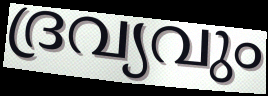
ദ്രവ്യവും